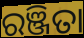
ରଞ୍ଜିତା